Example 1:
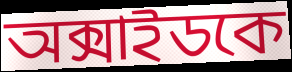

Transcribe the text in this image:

অক্সাইডকে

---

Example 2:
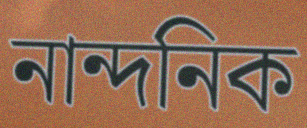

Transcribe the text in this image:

নান্দনিক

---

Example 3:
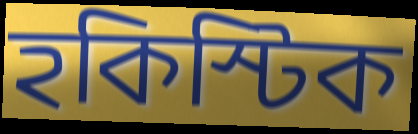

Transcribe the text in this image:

হকিস্টিক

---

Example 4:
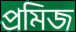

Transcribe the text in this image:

প্রমিজ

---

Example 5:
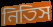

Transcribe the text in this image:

নিতিস